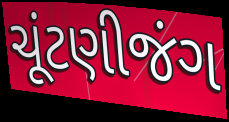
ચૂંટણીજંગ